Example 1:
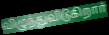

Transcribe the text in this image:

விழுந்துவிடுகிறார்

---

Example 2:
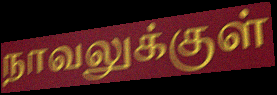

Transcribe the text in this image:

நாவலுக்குள்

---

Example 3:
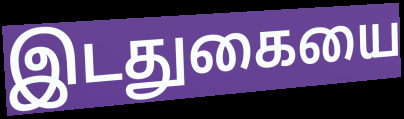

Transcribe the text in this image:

இடதுகையை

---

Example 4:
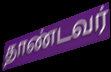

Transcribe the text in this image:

தாண்டவர்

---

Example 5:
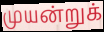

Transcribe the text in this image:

முயன்றுக்